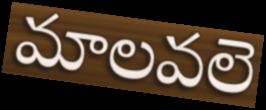
మాలవలె